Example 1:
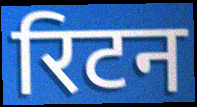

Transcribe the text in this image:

रिटन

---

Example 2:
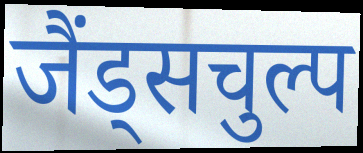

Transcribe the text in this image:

जैंड्सचुल्प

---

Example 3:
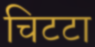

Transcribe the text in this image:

चिटटा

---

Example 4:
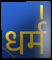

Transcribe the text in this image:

धर्म॑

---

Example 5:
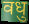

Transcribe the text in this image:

वधु